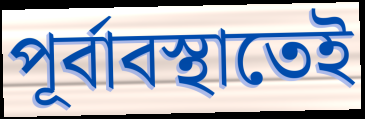
পূর্বাবস্থাতেই